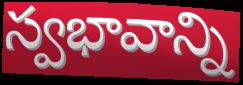
స్వభావాన్ని